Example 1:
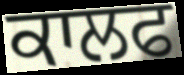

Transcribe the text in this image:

ਕਾਲਫ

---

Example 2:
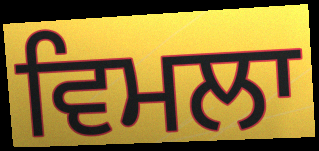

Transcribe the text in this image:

ਵਿਮਲਾ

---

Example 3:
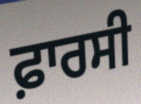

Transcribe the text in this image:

ਫ਼ਾਰਸੀ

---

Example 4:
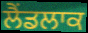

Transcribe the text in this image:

ਲੈਂਡਲਾਕ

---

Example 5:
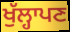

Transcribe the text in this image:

ਖੁੱਲ੍ਹਾਪਣ